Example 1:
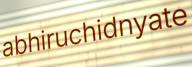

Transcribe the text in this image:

abhiruchidnyate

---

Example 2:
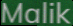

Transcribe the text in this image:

Malik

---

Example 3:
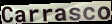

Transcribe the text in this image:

Carrasco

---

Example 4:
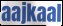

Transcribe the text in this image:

aajkaal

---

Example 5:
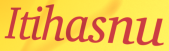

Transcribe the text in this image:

Itihasnu